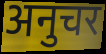
अनुचर